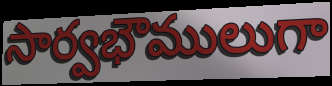
సార్వభౌములుగా